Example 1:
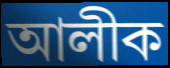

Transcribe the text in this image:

আলীক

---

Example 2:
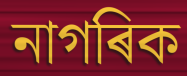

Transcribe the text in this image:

নাগৰিক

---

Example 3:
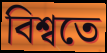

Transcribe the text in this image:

বিশ্বতে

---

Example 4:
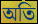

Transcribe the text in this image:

অতি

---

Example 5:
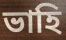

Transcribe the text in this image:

ভাহি